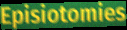
Episiotomies